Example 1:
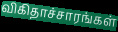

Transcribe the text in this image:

விகிதாச்சாரங்கள்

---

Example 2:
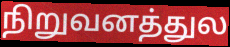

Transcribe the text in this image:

நிறுவனத்துல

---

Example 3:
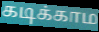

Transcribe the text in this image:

கடிக்காம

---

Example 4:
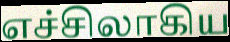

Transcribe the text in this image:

எச்சிலாகிய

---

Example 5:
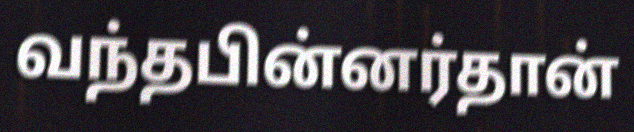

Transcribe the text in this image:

வந்தபின்னர்தான்